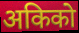
अकिको